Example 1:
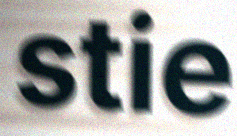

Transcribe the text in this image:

stie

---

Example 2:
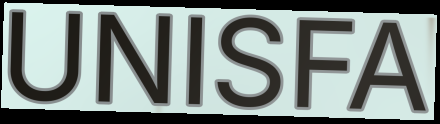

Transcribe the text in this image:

UNISFA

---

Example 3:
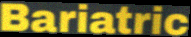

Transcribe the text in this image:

Bariatric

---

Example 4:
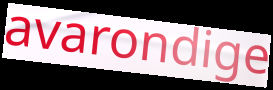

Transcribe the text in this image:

avarondige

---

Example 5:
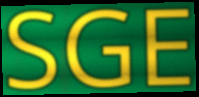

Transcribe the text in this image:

SGE